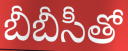
బీబీసీతో